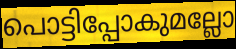
പൊട്ടിപ്പോകുമല്ലോ